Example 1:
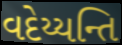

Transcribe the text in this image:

વદેય્યન્તિ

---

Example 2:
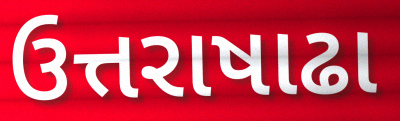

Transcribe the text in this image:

ઉત્તરાષાઢા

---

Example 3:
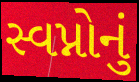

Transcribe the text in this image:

સ્વપ્નોનું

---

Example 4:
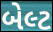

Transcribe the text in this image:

બેલ્ટ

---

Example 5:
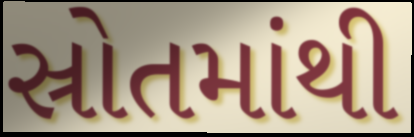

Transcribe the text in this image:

સ્રોતમાંથી